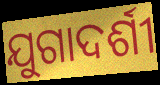
ଯୁଗାଦର୍ଶୀ